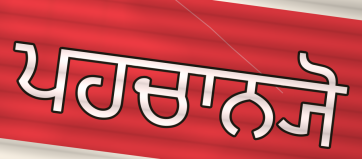
ਪਹਚਾਨ੍ਯੋ